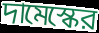
দামেস্কের